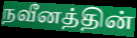
நவீனத்தின்